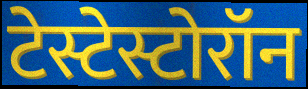
टेस्टेस्टोरॉन